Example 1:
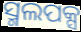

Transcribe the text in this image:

ସ୍ମଲପକ୍ସ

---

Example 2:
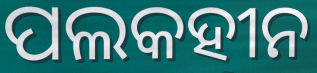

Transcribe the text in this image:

ପଲକହୀନ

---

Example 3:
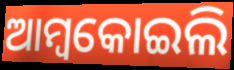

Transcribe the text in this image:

ଆମ୍ବକୋଇଲି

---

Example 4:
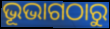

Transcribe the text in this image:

ଭୂଭାଗଠାରୁ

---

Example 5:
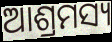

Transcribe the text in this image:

ଆଶ୍ରମସ୍ୟ